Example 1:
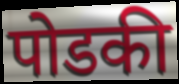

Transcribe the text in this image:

पोडकी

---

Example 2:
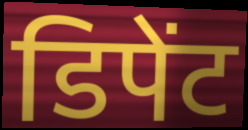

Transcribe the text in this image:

डिपेंट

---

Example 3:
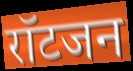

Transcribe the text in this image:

रॉटजन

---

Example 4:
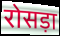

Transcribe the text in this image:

रोसड़ा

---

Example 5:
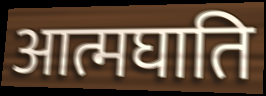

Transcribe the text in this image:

आत्मघाति